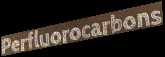
Perfluorocarbons